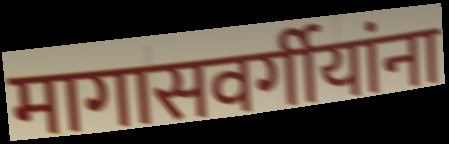
मागासवर्गीयांना